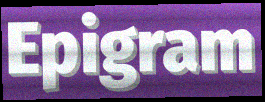
Epigram